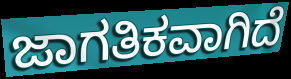
ಜಾಗತಿಕವಾಗಿದೆ